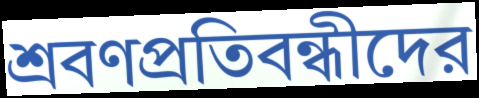
শ্রবণপ্রতিবন্ধীদের